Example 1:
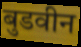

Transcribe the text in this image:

बुडवीन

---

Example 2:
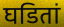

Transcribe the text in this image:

घडितां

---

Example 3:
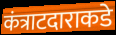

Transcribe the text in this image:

कंत्राटदाराकडे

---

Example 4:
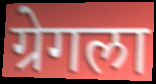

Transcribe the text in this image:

ग्रेगला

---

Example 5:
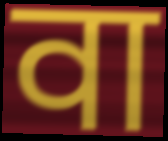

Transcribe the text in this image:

वा